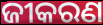
ଜୀକରଣ